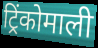
ट्रिंकोमाली